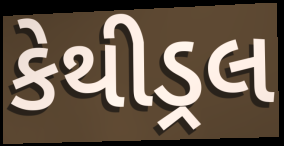
કેથીડ્રલ